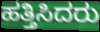
ಹತ್ತಿಸಿದರು